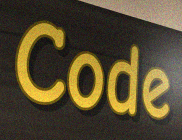
Code